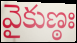
వైకుణ్ఠః